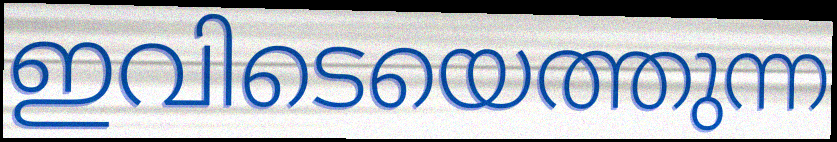
ഇവിടെയെത്തുന്ന